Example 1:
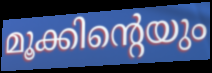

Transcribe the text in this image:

മൂക്കിന്റെയും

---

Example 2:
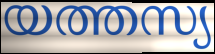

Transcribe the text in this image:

യത്തസ്യ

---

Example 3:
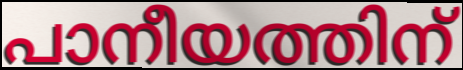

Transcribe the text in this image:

പാനീയത്തിന്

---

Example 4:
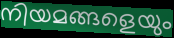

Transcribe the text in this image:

നിയമങ്ങളെയും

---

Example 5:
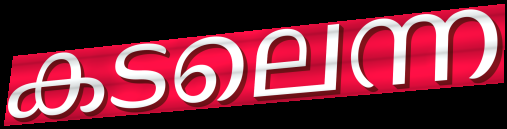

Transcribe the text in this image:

കടലെന്ന